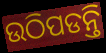
ଉଠିପଡନ୍ତି